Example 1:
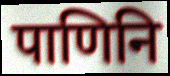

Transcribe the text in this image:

पाणिनि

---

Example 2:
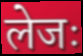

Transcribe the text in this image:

लेजः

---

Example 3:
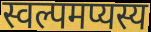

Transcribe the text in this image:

स्वल्पमप्यस्य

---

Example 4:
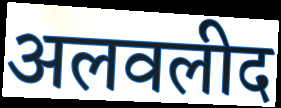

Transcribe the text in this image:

अलवलीद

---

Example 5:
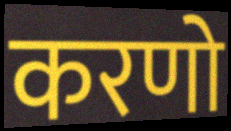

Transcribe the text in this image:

करणो